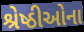
શ્રેષ્ઠીઓના